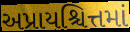
અપ્રાયશ્ચિત્તમાં